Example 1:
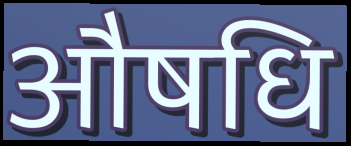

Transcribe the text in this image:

औषधि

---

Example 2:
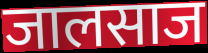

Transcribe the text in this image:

जालसाज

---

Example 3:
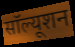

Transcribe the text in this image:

सॉल्यूशन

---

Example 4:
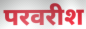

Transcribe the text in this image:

परवरीश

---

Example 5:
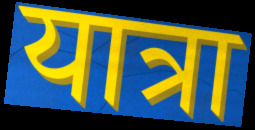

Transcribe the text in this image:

यात्रा